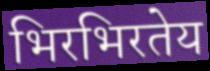
भिरभिरतेय